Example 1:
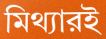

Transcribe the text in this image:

মিথ্যারই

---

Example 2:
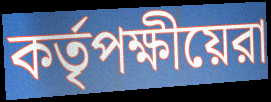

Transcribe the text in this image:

কর্তৃপক্ষীয়েরা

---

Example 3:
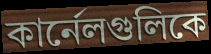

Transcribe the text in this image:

কার্নেলগুলিকে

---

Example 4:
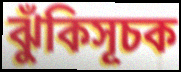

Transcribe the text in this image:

ঝুঁকিসূচক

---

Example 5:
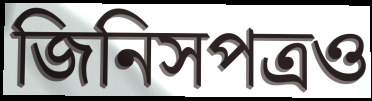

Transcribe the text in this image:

জিনিসপত্রও